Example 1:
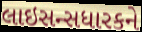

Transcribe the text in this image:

લાઇસન્સધારકને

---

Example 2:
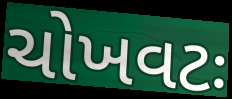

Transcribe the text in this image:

ચોખવટઃ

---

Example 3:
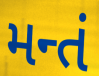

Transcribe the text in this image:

મન્તં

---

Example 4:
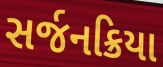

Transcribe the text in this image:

સર્જનક્રિયા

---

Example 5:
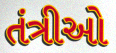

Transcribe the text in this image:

તંત્રીઓ